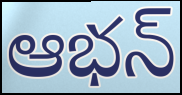
ఆభన్